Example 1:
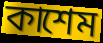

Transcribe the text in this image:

কাশেম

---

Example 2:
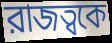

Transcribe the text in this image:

রাজত্বকে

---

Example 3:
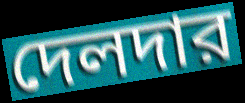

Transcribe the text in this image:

দেলদার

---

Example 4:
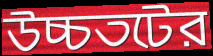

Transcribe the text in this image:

উচ্চতটের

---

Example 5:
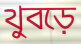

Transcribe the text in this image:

থুবড়ে